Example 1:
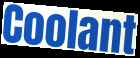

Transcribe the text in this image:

Coolant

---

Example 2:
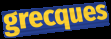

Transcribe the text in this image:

grecques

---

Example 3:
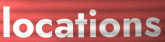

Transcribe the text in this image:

locations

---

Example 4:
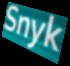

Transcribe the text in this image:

Snyk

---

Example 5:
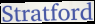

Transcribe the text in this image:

Stratford